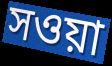
সওয়া